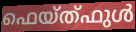
ഫെയ്ത്ഫുൾ